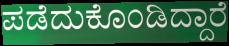
ಪಡೆದುಕೊಂಡಿದ್ದಾರೆ